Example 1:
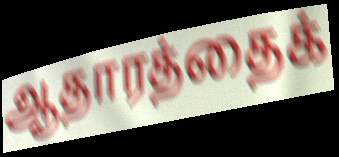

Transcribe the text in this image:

ஆதாரத்தைக்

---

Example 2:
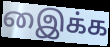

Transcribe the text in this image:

இைக்க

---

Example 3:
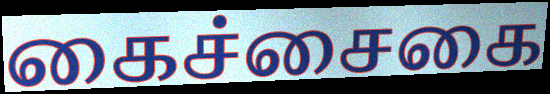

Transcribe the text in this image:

கைச்சைகை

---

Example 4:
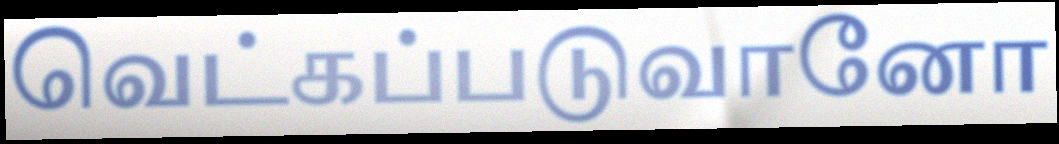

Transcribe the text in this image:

வெட்கப்படுவானோ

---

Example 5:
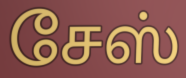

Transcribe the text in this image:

சேஸ்